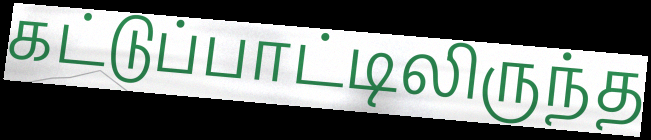
கட்டுப்பாட்டிலிருந்த